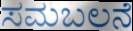
ಸಮಬಲನೆ